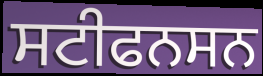
ਸਟੀਫਨਸਨ